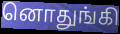
னொதுங்கி